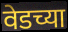
वेडच्या